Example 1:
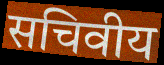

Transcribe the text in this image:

सचिवीय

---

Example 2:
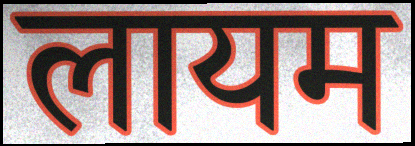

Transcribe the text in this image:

लायम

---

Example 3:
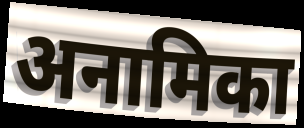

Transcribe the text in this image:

अनामिका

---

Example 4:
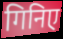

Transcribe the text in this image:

गिनिए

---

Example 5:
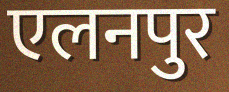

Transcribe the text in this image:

एलनपुर